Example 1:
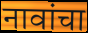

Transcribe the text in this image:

नावांचा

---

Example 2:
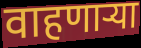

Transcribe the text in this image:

वाहणाऱ्या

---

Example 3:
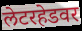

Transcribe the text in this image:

लेटरहेडवर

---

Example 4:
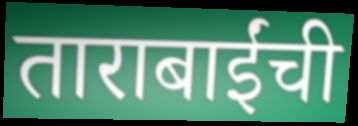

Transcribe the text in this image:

ताराबाईंची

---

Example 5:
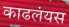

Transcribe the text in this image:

काढलंयस